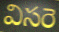
విసరె